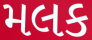
મલક